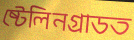
ষ্টেলিনগ্ৰাডত